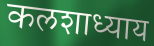
कलशाध्याय